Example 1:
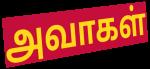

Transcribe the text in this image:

அவாகள்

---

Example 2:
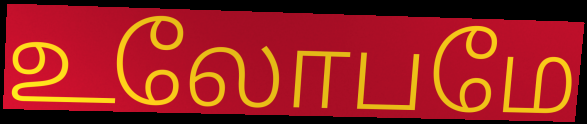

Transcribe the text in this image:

உலோபமே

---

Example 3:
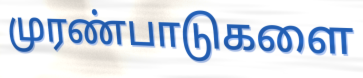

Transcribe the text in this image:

முரண்பாடுகளை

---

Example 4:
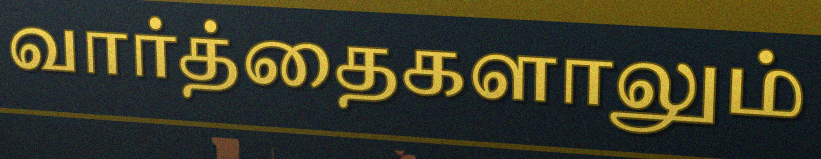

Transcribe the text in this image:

வார்த்தைகளாலும்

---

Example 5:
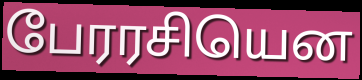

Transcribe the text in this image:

பேரரசியென